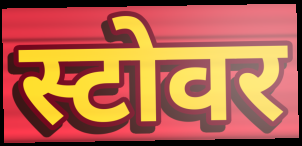
स्टोवर